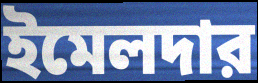
ইমেলদার